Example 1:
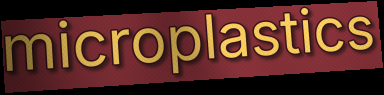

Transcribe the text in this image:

microplastics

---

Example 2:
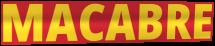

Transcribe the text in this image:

MACABRE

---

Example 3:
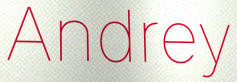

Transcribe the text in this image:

Andrey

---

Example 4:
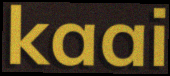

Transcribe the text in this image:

kaai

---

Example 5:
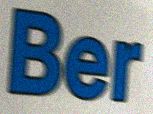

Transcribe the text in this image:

Ber